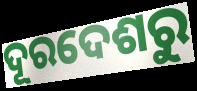
ଦୂରଦେଶରୁ